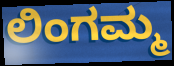
ಲಿಂಗಮ್ಮ